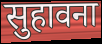
सुहावना